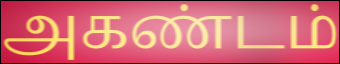
அகண்டம்